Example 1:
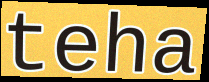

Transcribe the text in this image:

teha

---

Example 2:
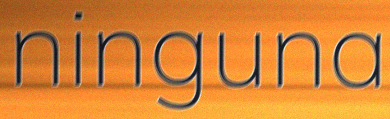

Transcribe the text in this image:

ninguna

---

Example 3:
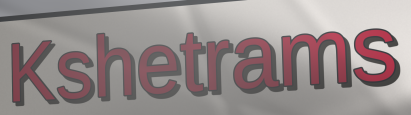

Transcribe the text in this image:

Kshetrams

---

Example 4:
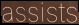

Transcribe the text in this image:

assists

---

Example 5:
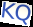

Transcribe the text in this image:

KQ